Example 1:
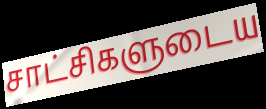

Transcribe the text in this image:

சாட்சிகளுடைய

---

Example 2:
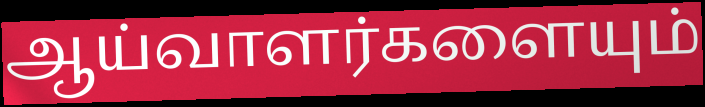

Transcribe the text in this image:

ஆய்வாளர்களையும்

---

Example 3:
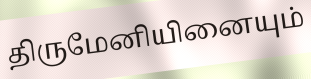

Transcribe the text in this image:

திருமேனியினையும்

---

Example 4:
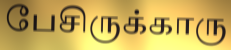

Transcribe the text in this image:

பேசிருக்காரு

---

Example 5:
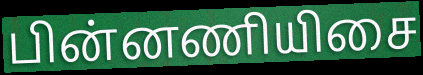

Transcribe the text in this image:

பின்னணியிசை